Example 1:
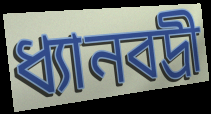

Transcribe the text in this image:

ধ্যানবদ্রী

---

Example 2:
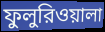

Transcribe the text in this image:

ফুলুরিওয়ালা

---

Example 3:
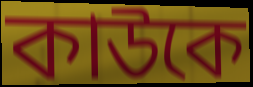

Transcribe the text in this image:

কাউকে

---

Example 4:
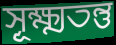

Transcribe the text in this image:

সূক্ষ্মতন্তু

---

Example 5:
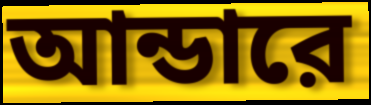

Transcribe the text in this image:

আন্ডারে